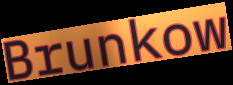
Brunkow